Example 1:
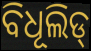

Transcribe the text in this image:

ବିଧୂଲିଡ୍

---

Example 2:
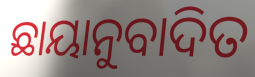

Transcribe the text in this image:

ଛାୟାନୁବାଦିତ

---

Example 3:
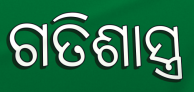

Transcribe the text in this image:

ଗତିଶାସ୍ତ୍ର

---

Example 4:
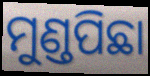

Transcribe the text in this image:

ମୁଣ୍ଡପିଛା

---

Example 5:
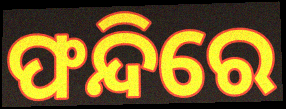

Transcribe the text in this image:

ଫନ୍ଦିରେ